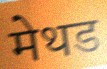
मेथड